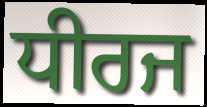
ਧੀਰਜ